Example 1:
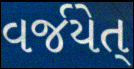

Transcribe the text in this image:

વર્જયેત્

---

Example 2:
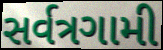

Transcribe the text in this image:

સર્વત્રગામી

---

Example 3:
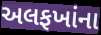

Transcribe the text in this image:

અલફખાંના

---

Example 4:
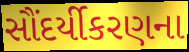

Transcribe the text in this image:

સૌંદર્યીકરણના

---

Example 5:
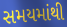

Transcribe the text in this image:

સમયમાંથી